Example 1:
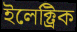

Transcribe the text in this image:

ইলেক্ট্ৰিক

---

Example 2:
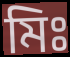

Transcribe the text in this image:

মিঃ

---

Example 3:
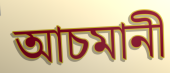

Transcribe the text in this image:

আচমানী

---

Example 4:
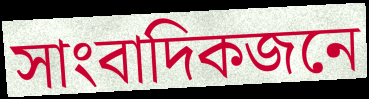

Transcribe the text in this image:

সাংবাদিকজনে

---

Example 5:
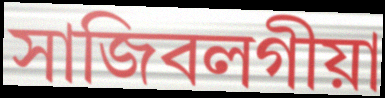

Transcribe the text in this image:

সাজিবলগীয়া